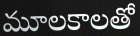
మూలకాలతో